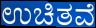
ಉಚಿತವೆ